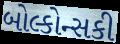
બોલ્કોન્સકી